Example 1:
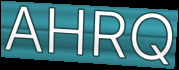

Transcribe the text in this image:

AHRQ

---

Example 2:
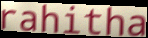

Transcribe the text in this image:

rahitha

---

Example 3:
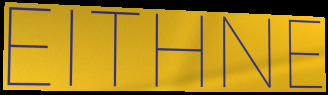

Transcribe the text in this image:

EITHNE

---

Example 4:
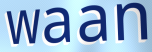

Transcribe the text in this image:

waan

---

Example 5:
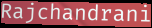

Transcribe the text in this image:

Rajchandrani